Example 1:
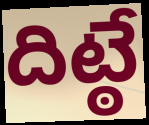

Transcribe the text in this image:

దిట్ఠే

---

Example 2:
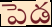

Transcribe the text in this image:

పెడ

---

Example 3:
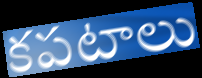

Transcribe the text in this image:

కపటాలు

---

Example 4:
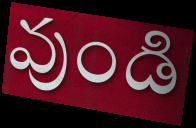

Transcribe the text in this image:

వుండి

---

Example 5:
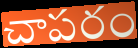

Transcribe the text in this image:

చాపరం